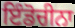
ਇੰਡੋਚੀਨਾ